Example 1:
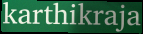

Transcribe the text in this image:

karthikraja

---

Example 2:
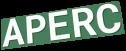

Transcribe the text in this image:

APERC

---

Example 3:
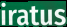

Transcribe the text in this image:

iratus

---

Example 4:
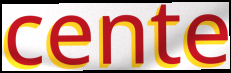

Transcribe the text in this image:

cente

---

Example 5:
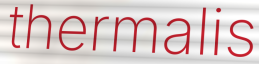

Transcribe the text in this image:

thermalis